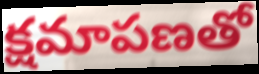
క్షమాపణతో